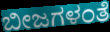
ಬೀಜಗಳಂತೆ